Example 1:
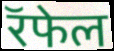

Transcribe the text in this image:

रॅफेल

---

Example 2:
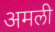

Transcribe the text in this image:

अमली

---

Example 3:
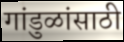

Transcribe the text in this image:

गांडुळांसाठी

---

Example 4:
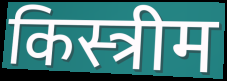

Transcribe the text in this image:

किस्त्रीम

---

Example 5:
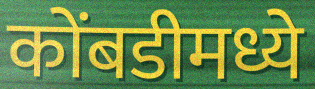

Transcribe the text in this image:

कोंबडीमध्ये